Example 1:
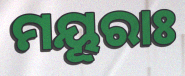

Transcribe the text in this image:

ମୟୂରାଃ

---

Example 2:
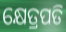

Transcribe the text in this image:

କ୍ଷେତ୍ରପତି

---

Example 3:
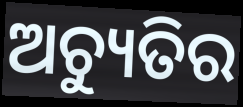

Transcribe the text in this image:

ଅଚ୍ୟୁତିର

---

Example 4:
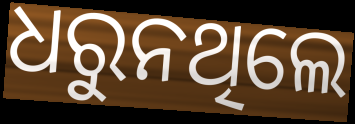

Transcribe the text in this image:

ଧରୁନଥିଲେ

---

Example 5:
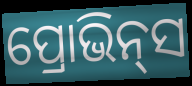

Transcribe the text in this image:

ପ୍ରୋଭିନ୍‌ସ